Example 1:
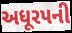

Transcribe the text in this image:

અધૂરપની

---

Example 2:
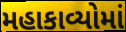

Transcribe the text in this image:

મહાકાવ્યોમાં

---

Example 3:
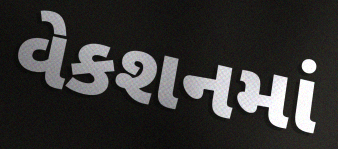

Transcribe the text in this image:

વેકશનમાં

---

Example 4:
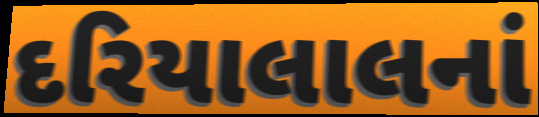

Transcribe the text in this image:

દરિયાલાલનાં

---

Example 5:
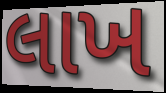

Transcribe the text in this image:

લાખ